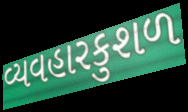
વ્યવહારકુશળ